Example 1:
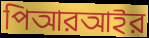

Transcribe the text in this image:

পিআরআইর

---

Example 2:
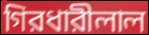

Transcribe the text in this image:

গিরধারীলাল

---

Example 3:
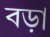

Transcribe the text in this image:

বড়া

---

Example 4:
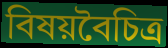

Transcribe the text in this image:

বিষয়বৈচিত্র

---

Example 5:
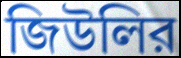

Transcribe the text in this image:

জিউলির